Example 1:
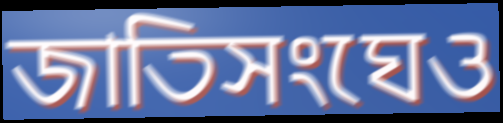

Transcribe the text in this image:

জাতিসংঘেও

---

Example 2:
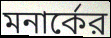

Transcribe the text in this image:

মনার্কের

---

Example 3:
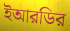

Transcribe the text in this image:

ইআরডির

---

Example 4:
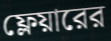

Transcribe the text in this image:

ফ্লেয়ারের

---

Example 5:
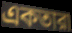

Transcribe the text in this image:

একতারা